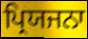
ਪ੍ਰਿਯਜਨਾ